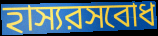
হাস্যরসবোধ